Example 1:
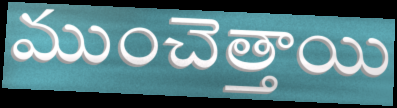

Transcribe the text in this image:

ముంచెత్తాయి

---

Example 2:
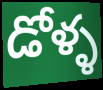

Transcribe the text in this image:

డోళ్ళ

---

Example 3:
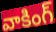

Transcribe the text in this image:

వాకింగ్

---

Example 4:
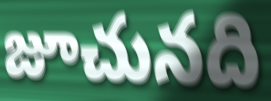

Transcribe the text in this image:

జూచునది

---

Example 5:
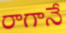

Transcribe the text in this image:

రాగానే